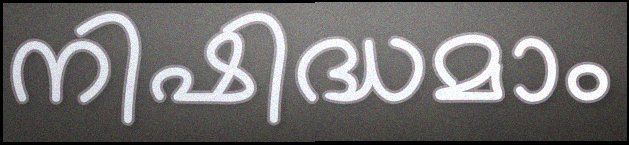
നിഷിദ്ധമാം